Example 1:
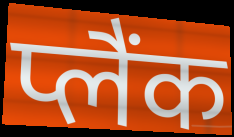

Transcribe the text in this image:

प्लैंक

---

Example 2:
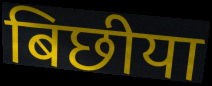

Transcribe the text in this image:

बिछीया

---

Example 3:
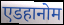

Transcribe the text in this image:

एडहानोम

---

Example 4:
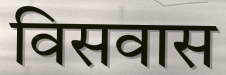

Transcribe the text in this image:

विसवास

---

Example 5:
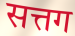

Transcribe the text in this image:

सत्तग